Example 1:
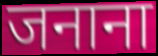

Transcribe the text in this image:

जनाना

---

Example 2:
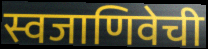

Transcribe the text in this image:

स्वजाणिवेची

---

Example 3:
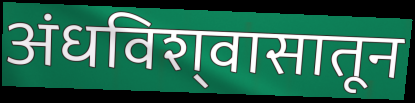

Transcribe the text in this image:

अंधविश्वासातून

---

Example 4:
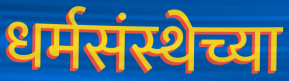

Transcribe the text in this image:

धर्मसंस्थेच्या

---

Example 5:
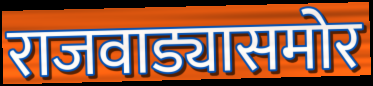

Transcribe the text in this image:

राजवाड्यासमोर